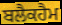
ਬਲੈਕਹੈਮ